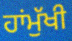
ਹਾਂਮੁੱਖੀ